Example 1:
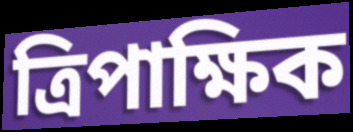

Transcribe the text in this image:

ত্ৰিপাক্ষিক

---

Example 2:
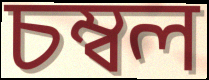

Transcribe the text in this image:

চম্বল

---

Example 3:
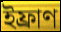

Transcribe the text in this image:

ইফ্ৰাণ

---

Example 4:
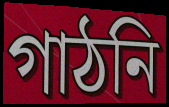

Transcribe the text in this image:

গাঠনি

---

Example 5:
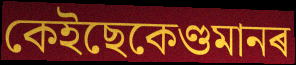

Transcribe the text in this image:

কেইছেকেণ্ডমানৰ